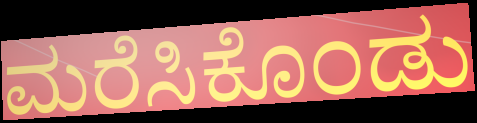
ಮರೆಸಿಕೊಂಡು